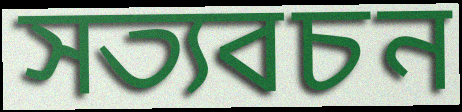
সত্যবচন